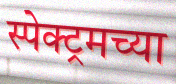
स्पेक्ट्रमच्या